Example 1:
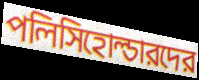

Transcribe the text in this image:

পলিসিহোল্ডারদের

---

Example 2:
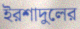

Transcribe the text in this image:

ইরশাদুলের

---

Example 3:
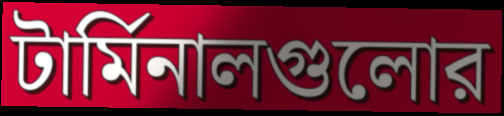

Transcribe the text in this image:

টার্মিনালগুলোর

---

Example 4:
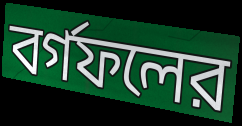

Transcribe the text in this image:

বর্গফলের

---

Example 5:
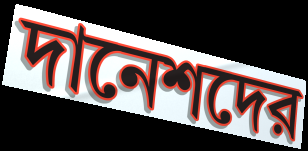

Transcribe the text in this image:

দানেশদের